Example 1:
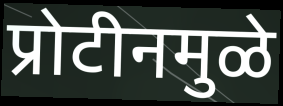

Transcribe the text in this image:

प्रोटीनमुळे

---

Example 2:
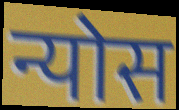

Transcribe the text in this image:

न्योस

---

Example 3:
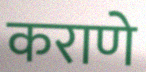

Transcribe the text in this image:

कराणे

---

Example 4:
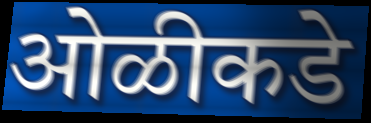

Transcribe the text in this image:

ओळीकडे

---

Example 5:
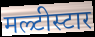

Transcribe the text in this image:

मल्टीस्टार